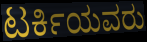
ಟರ್ಕಿಯವರು